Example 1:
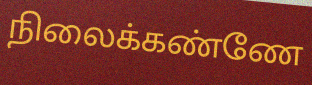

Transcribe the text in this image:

நிலைக்கண்ணே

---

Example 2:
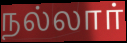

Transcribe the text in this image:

நல்லார்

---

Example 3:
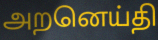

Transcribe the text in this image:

அறனெய்தி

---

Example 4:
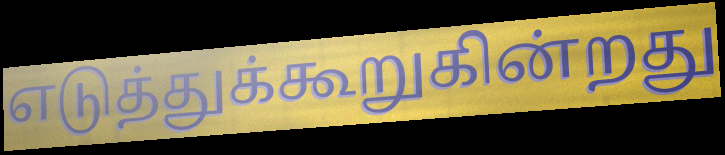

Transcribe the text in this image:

எடுத்துக்கூறுகின்றது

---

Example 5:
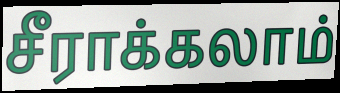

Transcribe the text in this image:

சீராக்கலாம்